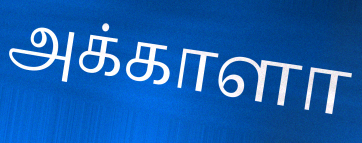
அக்காளா